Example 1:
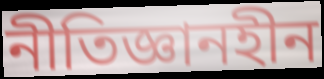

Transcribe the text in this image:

নীতিজ্ঞানহীন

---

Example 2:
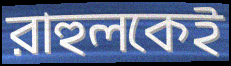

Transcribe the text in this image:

রাহুলকেই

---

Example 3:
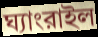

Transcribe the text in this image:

ঘ্যাংরাইল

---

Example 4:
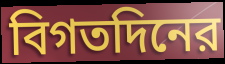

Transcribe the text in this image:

বিগতদিনের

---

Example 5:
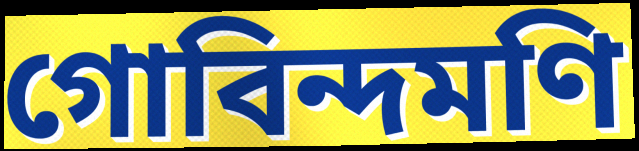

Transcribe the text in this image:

গোবিন্দমণি